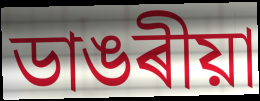
ডাঙৰীয়া